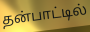
தன்பாட்டில்